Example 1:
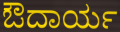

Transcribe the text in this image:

ಔದಾರ್ಯ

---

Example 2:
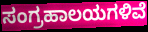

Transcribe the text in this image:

ಸಂಗ್ರಹಾಲಯಗಳಿವೆ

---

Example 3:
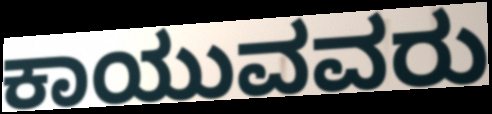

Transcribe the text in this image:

ಕಾಯುವವರು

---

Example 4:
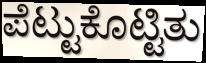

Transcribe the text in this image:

ಪೆಟ್ಟುಕೊಟ್ಟಿತು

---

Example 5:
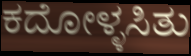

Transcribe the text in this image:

ಕದೋಳ್ಳಸಿತು